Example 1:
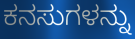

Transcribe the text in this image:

ಕನಸುಗಳನ್ನು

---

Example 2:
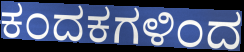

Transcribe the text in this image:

ಕಂದಕಗಳಿಂದ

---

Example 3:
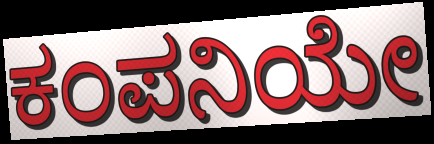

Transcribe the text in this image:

ಕಂಪನಿಯೇ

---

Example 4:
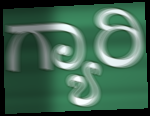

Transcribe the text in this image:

ಗ್ಯಾರಿ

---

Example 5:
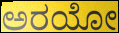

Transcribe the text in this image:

ಅರಯೋ